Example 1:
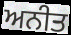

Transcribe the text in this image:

ਅਨੀਤ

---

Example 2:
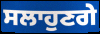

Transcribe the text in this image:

ਸਲਾਹੁਣਗੇ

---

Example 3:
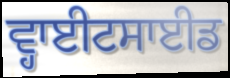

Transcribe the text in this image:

ਵ੍ਹਾਈਟਸਾਈਡ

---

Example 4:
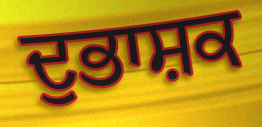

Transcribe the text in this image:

ਦੁਭਾਸ਼ਕ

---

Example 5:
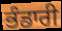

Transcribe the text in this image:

ਭੰਡਾਰੀ